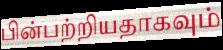
பின்பற்றியதாகவும்